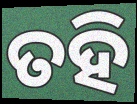
ତହି